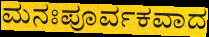
ಮನಃಪೂರ್ವಕವಾದ